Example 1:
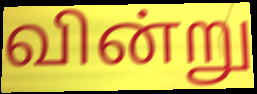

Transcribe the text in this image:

வின்று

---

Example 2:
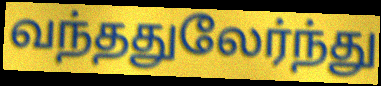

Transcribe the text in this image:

வந்ததுலேர்ந்து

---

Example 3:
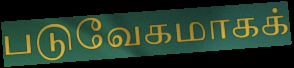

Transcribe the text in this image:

படுவேகமாகக்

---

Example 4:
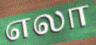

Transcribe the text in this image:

எலா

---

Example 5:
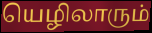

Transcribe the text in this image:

யெழிலாரும்